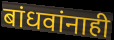
बांधवांनाही